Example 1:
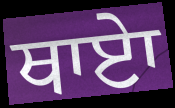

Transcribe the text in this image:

ਥਾਏਾ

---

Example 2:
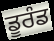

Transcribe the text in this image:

ਡੂਰੰਡ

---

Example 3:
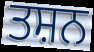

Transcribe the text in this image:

ਤਸ਼ਨ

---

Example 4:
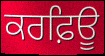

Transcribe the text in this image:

ਕਰਫ਼ਿਊ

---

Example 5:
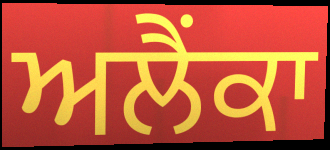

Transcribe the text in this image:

ਅਲੈਂਕਾ